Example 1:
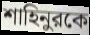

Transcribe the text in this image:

শাহিনুরকে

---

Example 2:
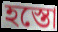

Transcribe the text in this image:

হস্তো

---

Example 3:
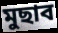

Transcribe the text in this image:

মুছাব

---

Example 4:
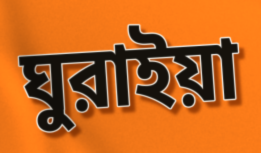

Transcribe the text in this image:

ঘুরাইয়া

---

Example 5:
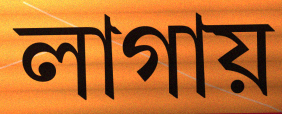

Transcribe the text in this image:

লাগায়